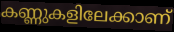
കണ്ണുകളിലേക്കാണ്